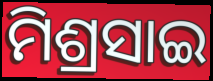
ମିଶ୍ରସାଇ